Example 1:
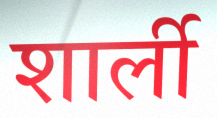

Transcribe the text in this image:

शार्ली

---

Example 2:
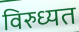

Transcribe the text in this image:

विरुध्यत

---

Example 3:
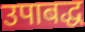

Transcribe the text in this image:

उपाबद्ध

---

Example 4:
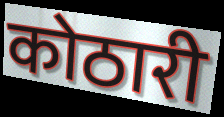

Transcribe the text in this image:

कोठारी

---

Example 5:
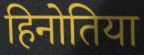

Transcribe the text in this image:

हिनोतिया